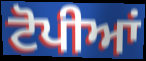
ਟੋਪੀਆਂ